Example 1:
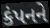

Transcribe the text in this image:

કંપનને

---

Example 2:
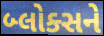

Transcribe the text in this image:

બ્લોક્સને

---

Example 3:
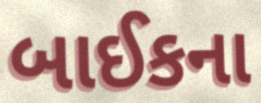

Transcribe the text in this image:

બાઈકના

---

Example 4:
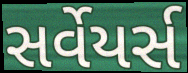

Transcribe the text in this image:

સર્વેયર્સ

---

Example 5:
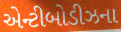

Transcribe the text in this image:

એન્ટીબોડીઝના